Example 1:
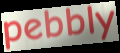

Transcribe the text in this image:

pebbly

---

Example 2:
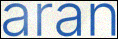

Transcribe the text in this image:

aran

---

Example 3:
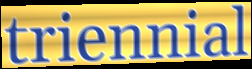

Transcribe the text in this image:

triennial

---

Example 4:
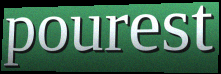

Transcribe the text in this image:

pourest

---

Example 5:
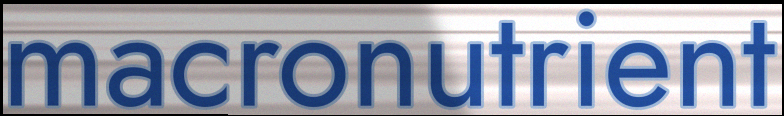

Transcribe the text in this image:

macronutrient